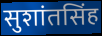
सुशांतसिंह